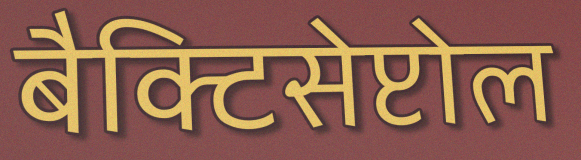
बैक्टिसेप्टोल